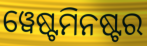
ୱେଷ୍ଟମିନଷ୍ଟର